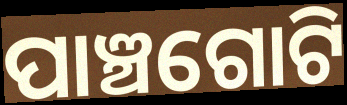
ପାଞ୍ଚଗୋଟି